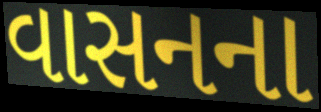
વાસનના